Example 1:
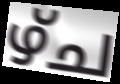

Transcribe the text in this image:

ഴ്ച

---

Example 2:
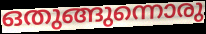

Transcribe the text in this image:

ഒതുങ്ങുന്നൊരു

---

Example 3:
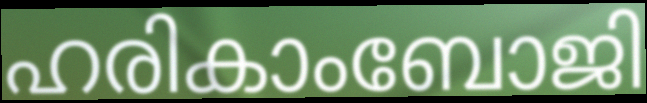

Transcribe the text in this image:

ഹരികാംബോജി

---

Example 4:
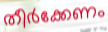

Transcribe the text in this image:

തീർക്കേണം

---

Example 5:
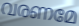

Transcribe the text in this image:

വരണമേ